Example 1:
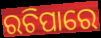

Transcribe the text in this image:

ରଚିପାରେ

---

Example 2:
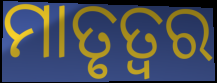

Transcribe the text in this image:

ମାତୃତ୍ୱର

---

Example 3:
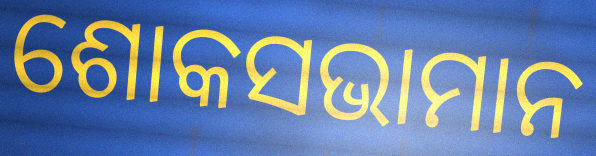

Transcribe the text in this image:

ଶୋକସଭାମାନ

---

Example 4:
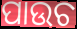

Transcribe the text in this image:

ପାଉଚ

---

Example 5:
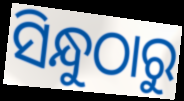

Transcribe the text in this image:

ସିନ୍ଧୁଠାରୁ